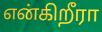
என்கிறீரா